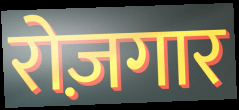
रोज़गार